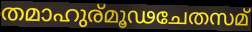
തമാഹുര്മൂഢചേതസമ്